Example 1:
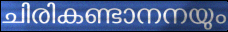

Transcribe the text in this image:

ചിരികണ്ടാനനയും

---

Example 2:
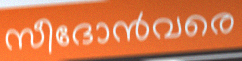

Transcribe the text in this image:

സീദോൻവരെ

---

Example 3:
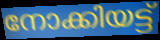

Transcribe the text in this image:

നോക്കിയട്ട്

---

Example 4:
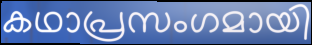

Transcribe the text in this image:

കഥാപ്രസംഗമായി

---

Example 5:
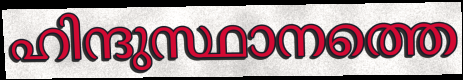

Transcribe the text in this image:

ഹിന്ദുസ്ഥാനത്തെ